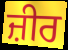
ਜ਼ੀਰ